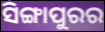
ସିଙ୍ଗାପୁରର